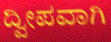
ದ್ವೀಪವಾಗಿ